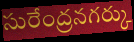
సురేంద్రనగర్కు